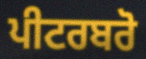
ਪੀਟਰਬਰੋ